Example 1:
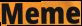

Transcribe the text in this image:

Meme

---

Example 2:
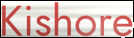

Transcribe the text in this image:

Kishore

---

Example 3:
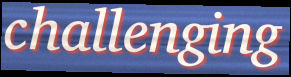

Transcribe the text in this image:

challenging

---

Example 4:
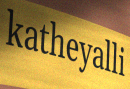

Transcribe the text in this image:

katheyalli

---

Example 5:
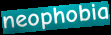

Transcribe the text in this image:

neophobia